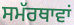
ਸਮੱਰਥਾਵਾਂ